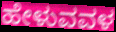
ಹೇಳುವವಳ